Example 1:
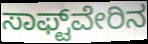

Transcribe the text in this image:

ಸಾಫ್ಟ್‌ವೇರಿನ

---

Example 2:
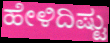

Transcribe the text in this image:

ಹೇಳಿದಿಷ್ಟು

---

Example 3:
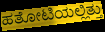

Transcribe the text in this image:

ಹತೋಟಿಯಲ್ಲಿತ್ತು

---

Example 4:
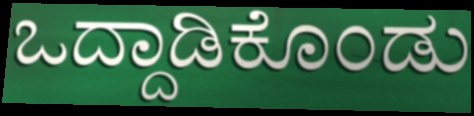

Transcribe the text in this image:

ಒದ್ದಾಡಿಕೊಂಡು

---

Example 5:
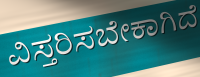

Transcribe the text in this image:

ವಿಸ್ತರಿಸಬೇಕಾಗಿದೆ